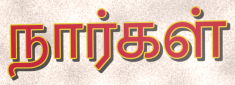
நார்கள்